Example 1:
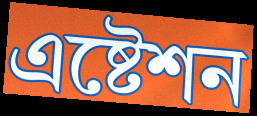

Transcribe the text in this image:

এষ্টেশন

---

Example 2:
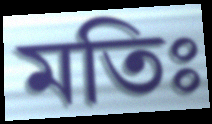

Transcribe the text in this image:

মতিঃ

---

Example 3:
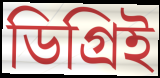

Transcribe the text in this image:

ডিগ্রিই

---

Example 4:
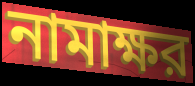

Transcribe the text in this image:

নামাক্ষর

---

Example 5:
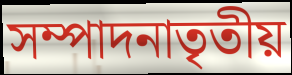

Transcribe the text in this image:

সম্পাদনাতৃতীয়